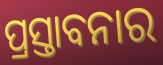
ପ୍ରସ୍ତାବନାର